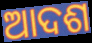
ଆଦଶ